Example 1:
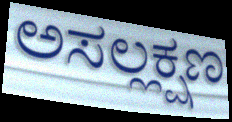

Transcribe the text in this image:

ಅಸಲ್ಲಕ್ಷಣ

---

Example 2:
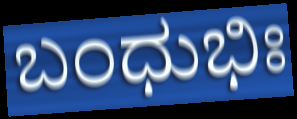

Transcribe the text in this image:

ಬಂಧುಭಿಃ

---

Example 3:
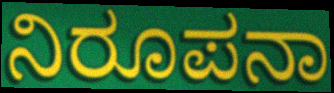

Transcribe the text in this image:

ನಿರೂಪನಾ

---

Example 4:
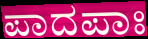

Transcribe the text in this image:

ಪಾದಪಾಃ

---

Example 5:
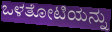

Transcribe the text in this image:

ಒಳತೋಟಿಯನ್ನು